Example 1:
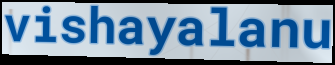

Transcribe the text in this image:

vishayalanu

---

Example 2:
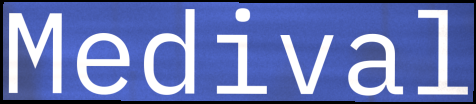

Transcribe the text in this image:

Medival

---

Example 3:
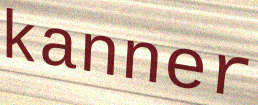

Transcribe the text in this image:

kanner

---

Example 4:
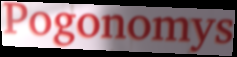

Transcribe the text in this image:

Pogonomys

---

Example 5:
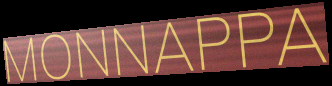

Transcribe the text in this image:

MONNAPPA